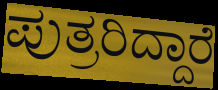
ಪುತ್ರರಿದ್ದಾರೆ